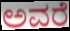
ಅವರೆ